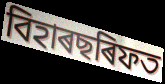
বিহাৰছৰিফত